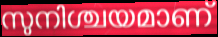
സുനിശ്ചയമാണ്